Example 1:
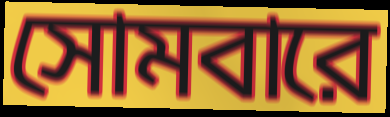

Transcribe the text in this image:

সোমবারে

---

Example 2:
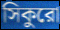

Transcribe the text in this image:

সিকুরো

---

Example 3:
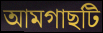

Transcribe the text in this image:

আমগাছটি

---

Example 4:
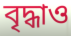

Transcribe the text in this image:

বৃদ্ধাও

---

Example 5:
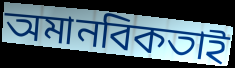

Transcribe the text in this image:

অমানবিকতাই